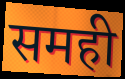
समही